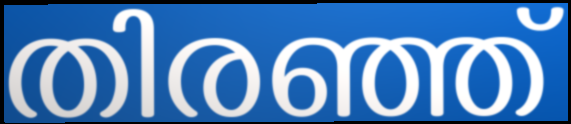
തിരഞ്ഞ്